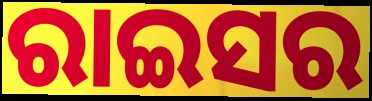
ରାଇସର